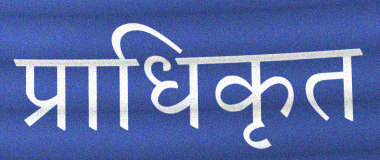
प्राधिकृत